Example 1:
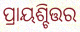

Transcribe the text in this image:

ପ୍ରାୟଶ୍ଚିତ୍ତର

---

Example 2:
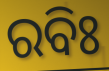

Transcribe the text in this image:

ରବିଃ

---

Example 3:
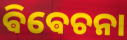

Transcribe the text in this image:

ଵିଵେଚନା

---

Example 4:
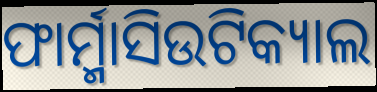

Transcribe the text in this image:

ଫାର୍ମ୍ମାସିଉଟିକ୍ୟାଲ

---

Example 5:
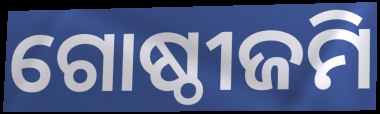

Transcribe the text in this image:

ଗୋଷ୍ଠୀଜମି